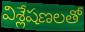
విశ్లేషణలతో